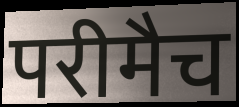
परीमैच